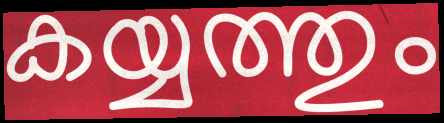
കയ്യത്തും